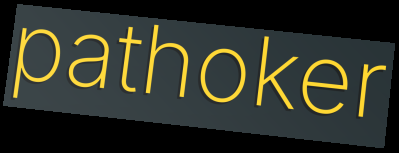
pathoker